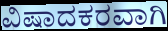
ವಿಷಾದಕರವಾಗಿ